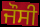
ਜੌਸੀ